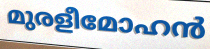
മുരളീമോഹൻ